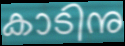
കാടിനു